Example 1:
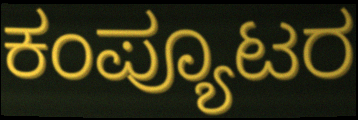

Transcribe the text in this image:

ಕಂಪ್ಯೂಟರ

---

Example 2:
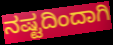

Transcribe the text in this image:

ನಷ್ಟದಿಂದಾಗಿ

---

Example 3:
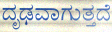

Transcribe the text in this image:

ದೃಢವಾಗುತ್ತದೆ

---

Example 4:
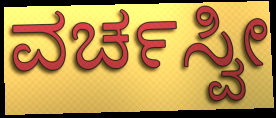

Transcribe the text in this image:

ವರ್ಚಸ್ವೀ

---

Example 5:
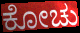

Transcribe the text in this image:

ಕೋಚು